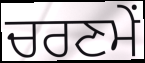
ਚਰਣਮੇਂ